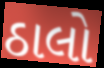
ઠાલો